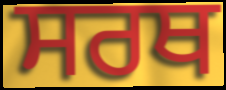
ਸਰਥ